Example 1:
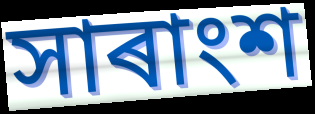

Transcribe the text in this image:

সাৰাংশ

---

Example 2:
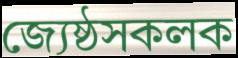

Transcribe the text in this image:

জ্যেষ্ঠসকলক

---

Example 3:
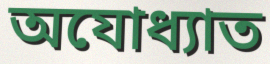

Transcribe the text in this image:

অযোধ্যাত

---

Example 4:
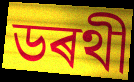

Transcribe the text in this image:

ডৰথী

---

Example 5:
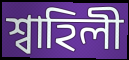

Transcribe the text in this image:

শ্বাহিলী